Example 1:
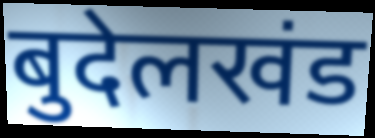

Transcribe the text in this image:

बुदेलखंड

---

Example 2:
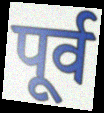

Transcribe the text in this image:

पूर्व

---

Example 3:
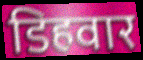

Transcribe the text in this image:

डिहवार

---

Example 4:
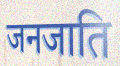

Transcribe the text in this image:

जनजाति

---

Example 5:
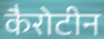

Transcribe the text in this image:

कैरोटीन